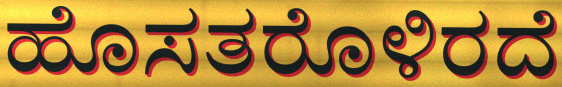
ಹೊಸತರೊಳಿರದೆ